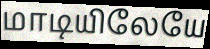
மாடியிலேயே